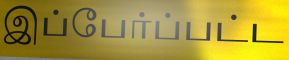
இப்பேர்ப்பட்ட